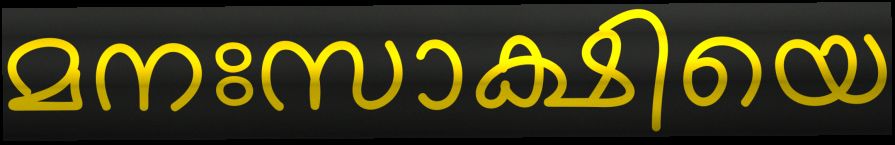
മനഃസാക്ഷിയെ